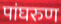
पांघरुण